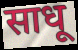
साधू